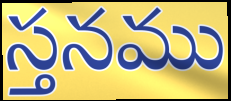
స్తనము